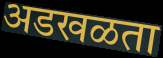
अडखळता